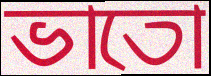
ভাতো